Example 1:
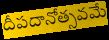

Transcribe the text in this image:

దీపదానోత్సవమే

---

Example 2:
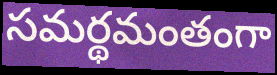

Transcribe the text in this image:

సమర్థమంతంగా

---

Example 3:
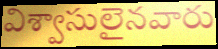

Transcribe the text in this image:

విశ్వాసులైనవారు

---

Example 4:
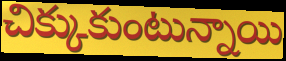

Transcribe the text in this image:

చిక్కుకుంటున్నాయి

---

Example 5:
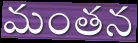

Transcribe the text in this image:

మంతన